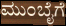
ಮುಂಬೈಗೆ